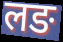
लङ